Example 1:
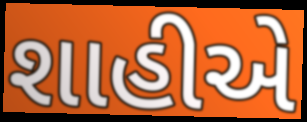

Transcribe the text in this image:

શાહીએ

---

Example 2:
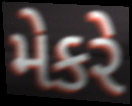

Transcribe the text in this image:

મેકરે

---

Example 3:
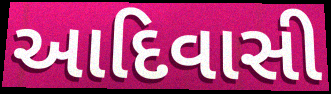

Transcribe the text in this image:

આદિવાસી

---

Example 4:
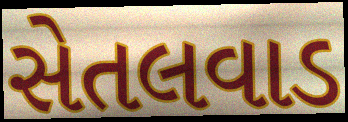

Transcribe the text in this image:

સેતલવાડ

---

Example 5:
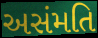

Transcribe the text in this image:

અસંમતિ